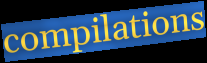
compilations